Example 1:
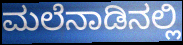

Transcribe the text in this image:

ಮಲೆನಾಡಿನಲ್ಲಿ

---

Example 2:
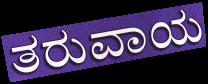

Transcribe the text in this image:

ತರುವಾಯ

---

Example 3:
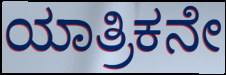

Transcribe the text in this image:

ಯಾತ್ರಿಕನೇ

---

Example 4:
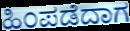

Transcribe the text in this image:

ಹಿಂಪಡೆದಾಗ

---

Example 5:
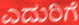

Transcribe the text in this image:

ಎದುರಿಗೆ